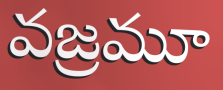
వజ్రమూ